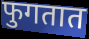
फुगतात